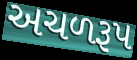
અચળરૂપ